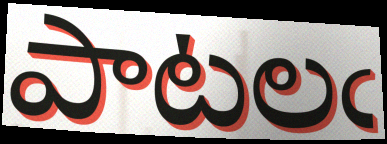
పాటలఁ